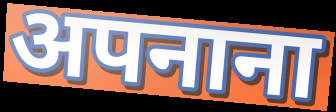
अपनाना